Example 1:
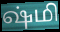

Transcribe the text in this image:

ஷ்மி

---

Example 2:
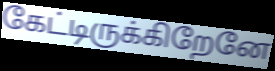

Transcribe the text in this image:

கேட்டிருக்கிறேனே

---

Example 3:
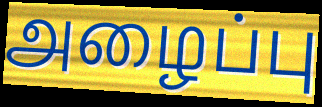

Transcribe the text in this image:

அழைப்பு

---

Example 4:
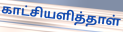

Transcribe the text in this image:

காட்சியளித்தாள்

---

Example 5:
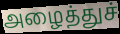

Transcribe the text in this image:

அழைத்துச்